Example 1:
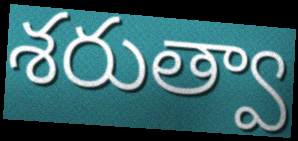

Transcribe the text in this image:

శరుత్వా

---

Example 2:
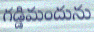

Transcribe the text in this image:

గడ్డిమందును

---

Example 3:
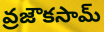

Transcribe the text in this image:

వ్రజౌకసామ్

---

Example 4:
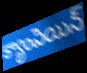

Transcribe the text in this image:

క్యాంపెయిన్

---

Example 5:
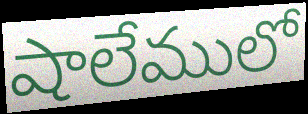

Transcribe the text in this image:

షాలేములో